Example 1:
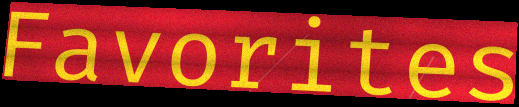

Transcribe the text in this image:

Favorites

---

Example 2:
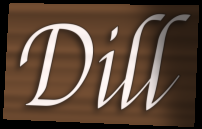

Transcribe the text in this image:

Dill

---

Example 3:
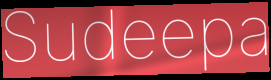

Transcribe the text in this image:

Sudeepa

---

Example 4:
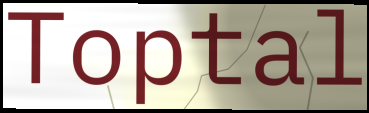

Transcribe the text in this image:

Toptal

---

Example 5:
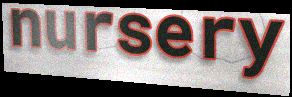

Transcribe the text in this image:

nursery